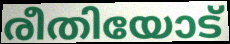
രീതിയോട്